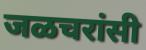
जळचरांसी